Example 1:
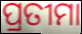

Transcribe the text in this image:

ପ୍ରତୀମା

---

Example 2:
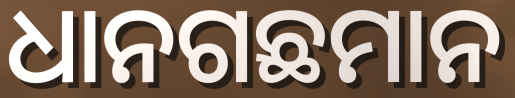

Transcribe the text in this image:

ଧାନଗଛମାନ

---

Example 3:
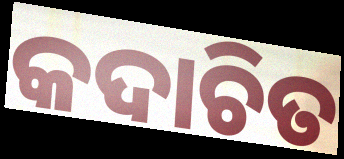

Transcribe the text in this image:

କଦାଚିତ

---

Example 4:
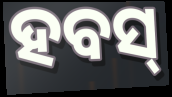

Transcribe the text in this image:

ହବସ୍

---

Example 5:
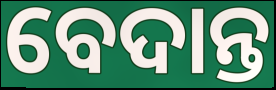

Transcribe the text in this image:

ବେଦାନ୍ତ